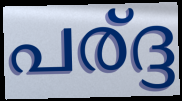
പര്ദ്ദ